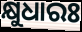
କ୍ଷୁଧାରଃ